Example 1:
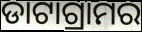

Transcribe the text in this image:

ଡାଟାଗ୍ରାମର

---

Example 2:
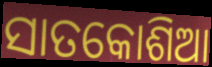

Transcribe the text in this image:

ସାତକୋଶିଆ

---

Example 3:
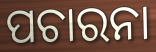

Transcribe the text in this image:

ପଚାରନା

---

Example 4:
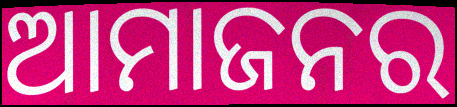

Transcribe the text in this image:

ଆମାଜନର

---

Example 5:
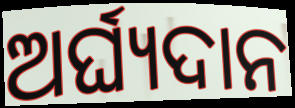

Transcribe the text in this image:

ଅର୍ଘ୍ୟଦାନ